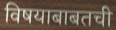
विषयाबाबतची